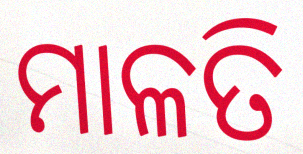
ମାଳତି